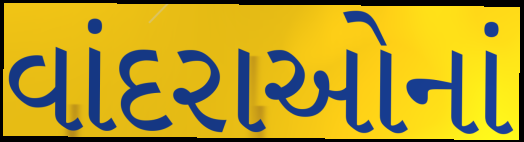
વાંદરાઓનાં